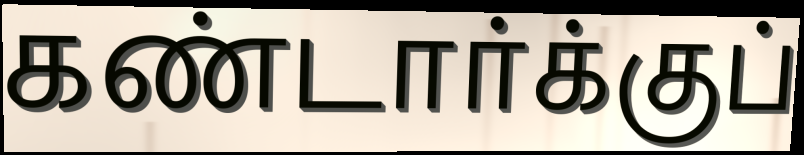
கண்டார்க்குப்